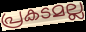
പ്രകടമല്ല